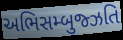
અભિસમ્બુજ્ઝતિ